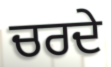
ਚਰਦੇ